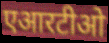
एआरटीओ